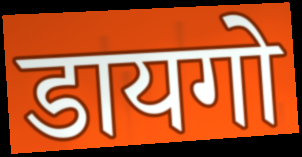
डायगो